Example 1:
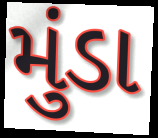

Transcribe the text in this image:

મુંડા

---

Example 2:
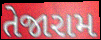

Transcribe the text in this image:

તેજારામ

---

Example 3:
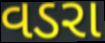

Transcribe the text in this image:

વડરા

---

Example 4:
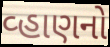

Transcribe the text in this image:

વ્હાણનો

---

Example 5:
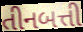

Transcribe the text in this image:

તીનબત્તી